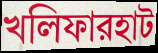
খলিফারহাট